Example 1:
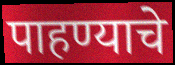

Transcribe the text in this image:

पाहण्याचे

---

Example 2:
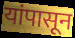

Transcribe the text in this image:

यांपासून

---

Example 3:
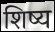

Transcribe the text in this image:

शिष्य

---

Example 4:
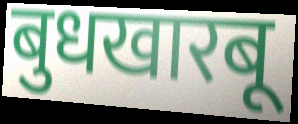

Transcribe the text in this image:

बुधखारबू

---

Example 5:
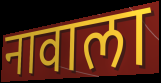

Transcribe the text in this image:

नावाला